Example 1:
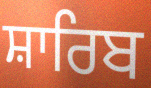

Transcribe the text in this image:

ਸ਼ਾਰਿਬ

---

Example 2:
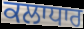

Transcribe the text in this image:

ਕਲਾਧਾਰ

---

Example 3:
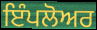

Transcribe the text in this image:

ਇੰਪਲੋਅਰ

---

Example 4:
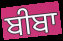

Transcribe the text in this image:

ਬੀਬਾ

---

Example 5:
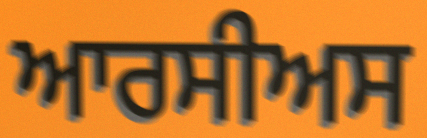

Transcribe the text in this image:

ਆਰਸੀਅਸ